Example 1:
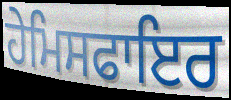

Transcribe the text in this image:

ਹੇਮਿਸਫਾਇਰ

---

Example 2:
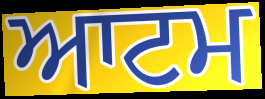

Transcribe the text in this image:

ਆਟਮ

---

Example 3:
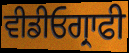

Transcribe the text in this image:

ਵੀਡੀਓਗ੍ਰਾਫੀ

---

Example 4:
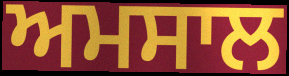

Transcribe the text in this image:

ਅਮਸਾਲ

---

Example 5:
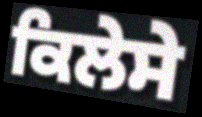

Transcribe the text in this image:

ਕਿਲੇਸੇ